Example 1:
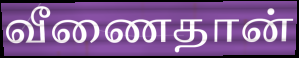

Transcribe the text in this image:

வீணைதான்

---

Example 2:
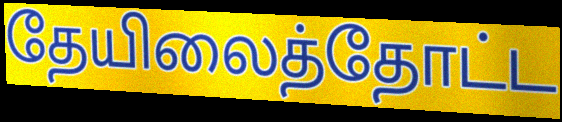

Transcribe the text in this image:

தேயிலைத்தோட்ட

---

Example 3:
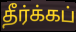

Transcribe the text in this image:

தீர்க்கப்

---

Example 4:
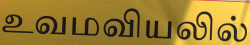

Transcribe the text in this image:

உவமவியலில்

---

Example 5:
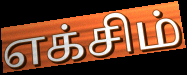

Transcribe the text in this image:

எக்சிம்